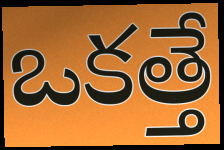
ఒకత్తే